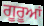
ਗੂਰੂਆਂ